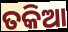
ତକିଆ